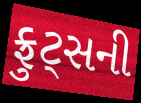
ફ્રુટ્સની